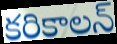
కరికాలన్